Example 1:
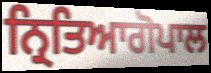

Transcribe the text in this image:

ਨ੍ਰਿਤਿਆਗੋਪਾਲ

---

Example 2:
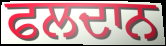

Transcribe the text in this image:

ਫਲਦਾਨ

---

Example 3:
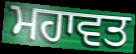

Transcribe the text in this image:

ਮਹਾਵਤ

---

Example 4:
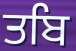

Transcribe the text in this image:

ਤਬਿ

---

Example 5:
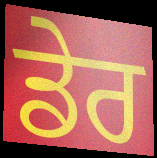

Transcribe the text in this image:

ਡੇਰ